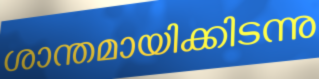
ശാന്തമായിക്കിടന്നു